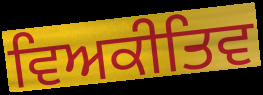
ਵਿਅਕੀਤਿਵ